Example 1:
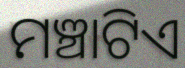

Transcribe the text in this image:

ମଞ୍ଚାଟିଏ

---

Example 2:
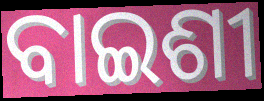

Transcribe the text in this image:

ବାଇଶୀ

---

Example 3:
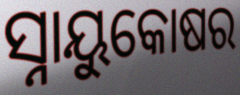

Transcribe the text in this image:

ସ୍ନାୟୁକୋଷର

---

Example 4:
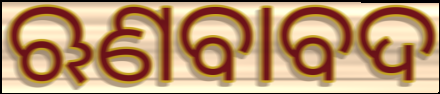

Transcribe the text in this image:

ଋଣବାବଦ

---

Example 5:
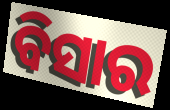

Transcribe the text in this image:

ବିସାର